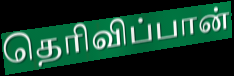
தெரிவிப்பான்